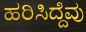
ಹರಿಸಿದ್ದೆವು